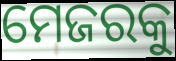
ମେଜରକୁ